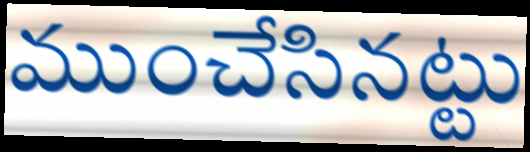
ముంచేసినట్టు